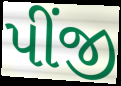
પીંજી